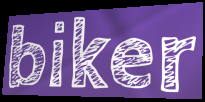
biker